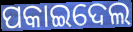
ପକାଇଦେଲ